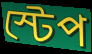
স্টেপ